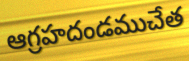
ఆగ్రహదండముచేత